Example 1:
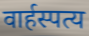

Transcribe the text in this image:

वार्हस्पत्य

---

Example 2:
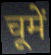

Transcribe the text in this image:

चूमें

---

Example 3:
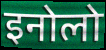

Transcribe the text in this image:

इनोलो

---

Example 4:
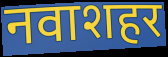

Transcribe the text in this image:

नवाशहर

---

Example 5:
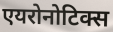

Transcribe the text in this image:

एयरोनोटिक्स